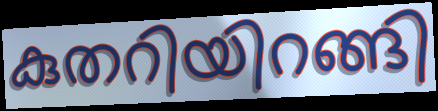
കുതറിയിറങ്ങി